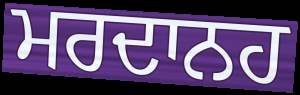
ਮਰਦਾਨਹ